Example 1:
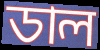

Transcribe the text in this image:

ডাল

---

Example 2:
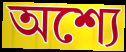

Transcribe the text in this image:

অশ্যে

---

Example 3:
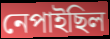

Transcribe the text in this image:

নেপাইছিল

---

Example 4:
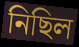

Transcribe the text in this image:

নিছিল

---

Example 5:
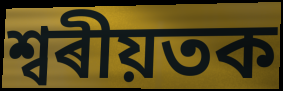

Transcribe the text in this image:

শ্বৰীয়তক